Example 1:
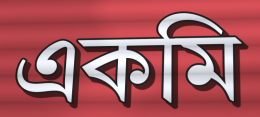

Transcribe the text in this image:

একমি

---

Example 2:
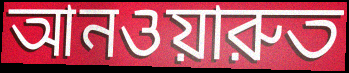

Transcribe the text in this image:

আনওয়ারুত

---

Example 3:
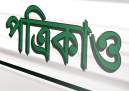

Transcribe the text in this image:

পত্রিকাও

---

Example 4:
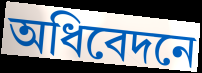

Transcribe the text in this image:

অধিবেদনে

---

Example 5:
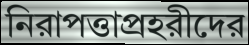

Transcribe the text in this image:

নিরাপত্তাপ্রহরীদের